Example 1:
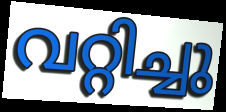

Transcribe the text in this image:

വറ്റിച്ചു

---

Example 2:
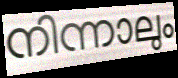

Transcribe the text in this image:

നിന്നാലും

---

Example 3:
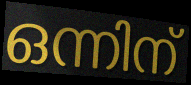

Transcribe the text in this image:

ഒന്നിന്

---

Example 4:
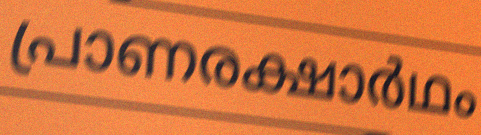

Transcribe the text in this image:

പ്രാണരക്ഷാർഥം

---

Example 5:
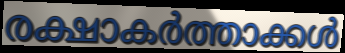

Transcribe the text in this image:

രക്ഷാകർത്താക്കൾ